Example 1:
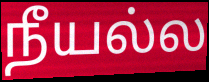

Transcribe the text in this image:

நீயல்ல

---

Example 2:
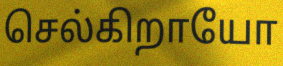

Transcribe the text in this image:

செல்கிறாயோ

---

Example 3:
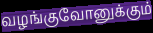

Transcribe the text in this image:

வழங்குவோனுக்கும்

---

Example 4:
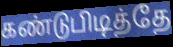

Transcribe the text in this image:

கண்டுபிடித்தே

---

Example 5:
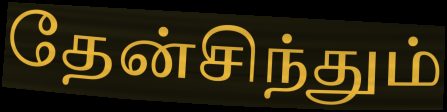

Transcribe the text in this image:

தேன்சிந்தும்